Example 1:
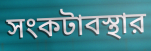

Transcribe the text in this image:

সংকটাবস্থার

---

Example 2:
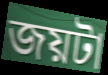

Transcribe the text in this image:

জয়টা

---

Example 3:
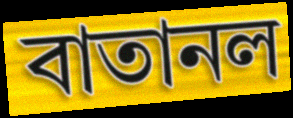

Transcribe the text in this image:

বাতানল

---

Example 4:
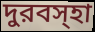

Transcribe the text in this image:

দুরবস্হা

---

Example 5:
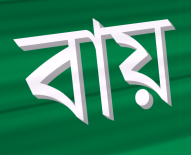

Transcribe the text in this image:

বায়